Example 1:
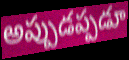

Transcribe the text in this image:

అప్పుడప్పడూ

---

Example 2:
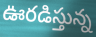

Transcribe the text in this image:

ఊరడిస్తున్న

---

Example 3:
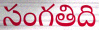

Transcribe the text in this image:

సంగతిది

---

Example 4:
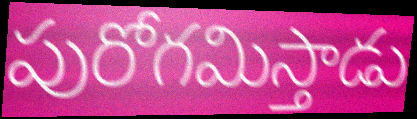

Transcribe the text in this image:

పురోగమిస్తాడు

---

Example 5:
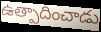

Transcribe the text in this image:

ఉత్పాదించాడు